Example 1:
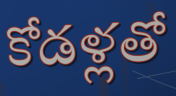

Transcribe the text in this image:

కోడళ్లతో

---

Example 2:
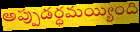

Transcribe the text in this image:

అప్పుడర్ధమయ్యింది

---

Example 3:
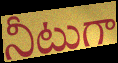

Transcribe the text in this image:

నీటుగా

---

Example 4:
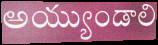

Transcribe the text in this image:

అయ్యుండాలి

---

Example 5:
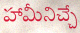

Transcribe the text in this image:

హామీనిచ్చే